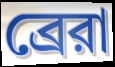
ব্রেরা